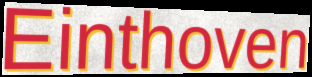
Einthoven